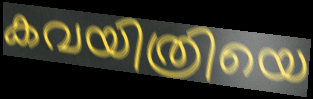
കവയിത്രിയെ